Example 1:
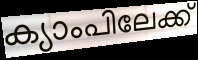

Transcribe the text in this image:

ക്യാംപിലേക്ക്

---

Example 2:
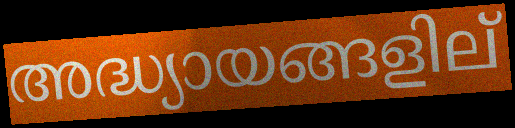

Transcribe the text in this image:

അദ്ധ്യായങ്ങളില്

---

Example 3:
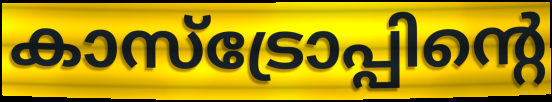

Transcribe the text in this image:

കാസ്ട്രോപ്പിന്റെ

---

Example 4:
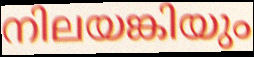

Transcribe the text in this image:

നിലയങ്കിയും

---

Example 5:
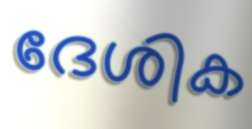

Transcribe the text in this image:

ദേശിക